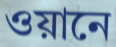
ওয়ানে